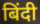
बिंदी